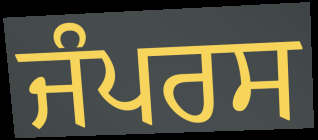
ਜੰਪਰਸ